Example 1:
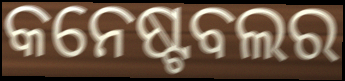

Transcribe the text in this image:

କନେଷ୍ଟବଲର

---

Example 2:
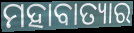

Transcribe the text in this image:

ମହାବାତ୍ୟାର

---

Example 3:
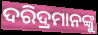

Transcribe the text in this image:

ଦରିଦ୍ରମାନଙ୍କୁ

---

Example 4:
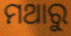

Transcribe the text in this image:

ମଥାରୁ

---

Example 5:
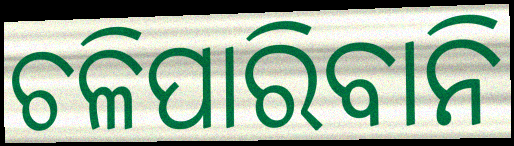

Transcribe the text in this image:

ଚଳିପାରିବାନି